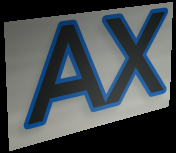
AX